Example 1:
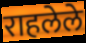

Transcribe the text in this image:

राहलेले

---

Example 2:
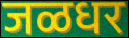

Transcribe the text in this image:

जळधर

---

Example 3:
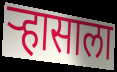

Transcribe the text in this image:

ऱ्हासाला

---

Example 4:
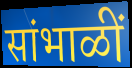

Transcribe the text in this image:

सांभाळीं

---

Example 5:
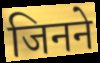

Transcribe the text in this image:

जिनने